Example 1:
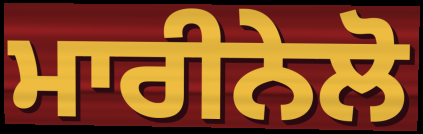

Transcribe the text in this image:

ਮਾਰੀਨੇਲੋ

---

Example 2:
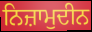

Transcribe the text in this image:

ਨਿਜ਼ਾਮੁਦੀਨ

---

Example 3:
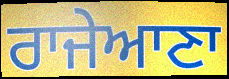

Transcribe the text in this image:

ਰਾਜੇਆਣਾ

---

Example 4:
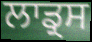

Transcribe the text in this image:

ਲਾਡ੍ਰਸ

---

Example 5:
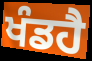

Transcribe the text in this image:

ਖੰਡਹੈ